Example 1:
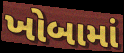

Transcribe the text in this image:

ખોબામાં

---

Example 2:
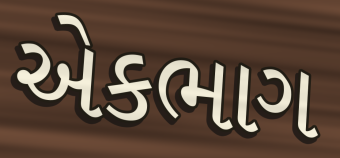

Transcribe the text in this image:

એકભાગ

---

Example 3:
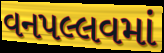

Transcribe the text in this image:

વનપલ્લવમાં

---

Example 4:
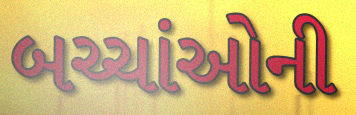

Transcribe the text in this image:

બચ્ચાંઓની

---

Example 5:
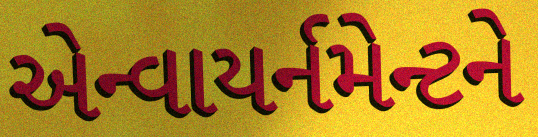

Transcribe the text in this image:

એન્વાયર્નમેન્ટને